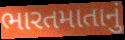
ભારતમાતાનું